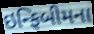
ઇન્ફિબીમના